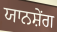
ਯਾਨਸ਼ੇਂਗ